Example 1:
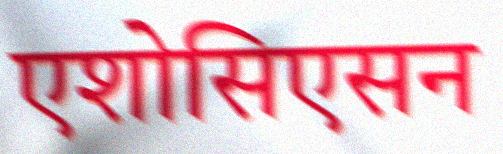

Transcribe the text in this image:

एशोसिएसन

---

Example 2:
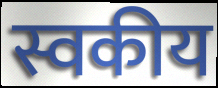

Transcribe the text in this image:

स्वकीय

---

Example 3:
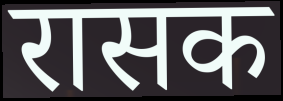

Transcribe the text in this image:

रासक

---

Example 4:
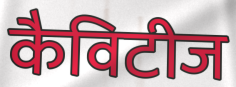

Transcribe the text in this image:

कैविटीज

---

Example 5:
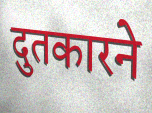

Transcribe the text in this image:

दुतकारने